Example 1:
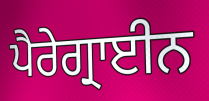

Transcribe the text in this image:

ਪੈਰੇਗ੍ਰਾਈਨ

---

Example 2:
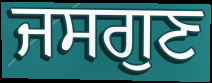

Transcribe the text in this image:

ਜਸਗੁਣ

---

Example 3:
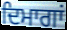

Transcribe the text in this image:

ਦਿਮਾਗਾਂ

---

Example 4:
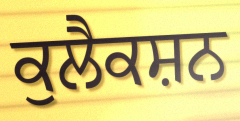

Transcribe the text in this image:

ਕੁਲੈਕਸ਼ਨ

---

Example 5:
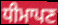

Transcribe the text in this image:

ਧੀਮਾਪਣ